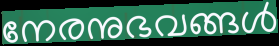
നേരനുഭവങ്ങൾ